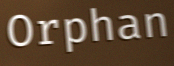
Orphan